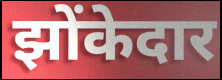
झोंकेदार